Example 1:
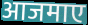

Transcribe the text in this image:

आजमाए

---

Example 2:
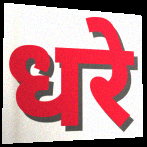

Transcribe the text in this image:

धरे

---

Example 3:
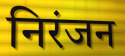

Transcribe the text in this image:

निरंजन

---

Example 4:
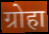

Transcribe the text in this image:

ग्रोहा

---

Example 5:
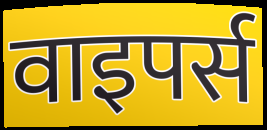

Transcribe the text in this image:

वाइपर्स